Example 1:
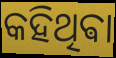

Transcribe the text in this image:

କହିଥିଵା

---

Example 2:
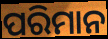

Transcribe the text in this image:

ପରିମାନ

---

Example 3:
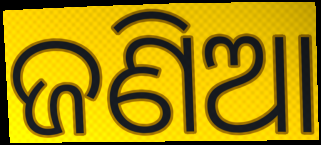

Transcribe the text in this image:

ଜଣିଆ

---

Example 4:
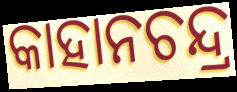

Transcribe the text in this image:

କାହାନଚନ୍ଦ୍ର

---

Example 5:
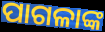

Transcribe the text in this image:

ପାଗଳାଙ୍କ